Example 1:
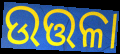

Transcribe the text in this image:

ଉତ୍ତଳା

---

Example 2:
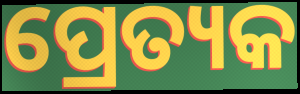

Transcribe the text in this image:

ପ୍ରେତ୍ୟକ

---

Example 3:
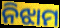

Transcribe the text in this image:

ନିଝାମ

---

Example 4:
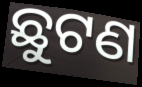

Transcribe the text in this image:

ଛୁଟଣ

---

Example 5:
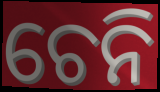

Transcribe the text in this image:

ଚେନି